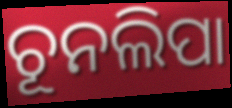
ଚୂନଲିପା